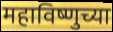
महाविष्णुच्या